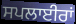
ਸਪਲਾਈਰਾਂ